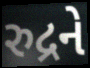
રુદ્રને